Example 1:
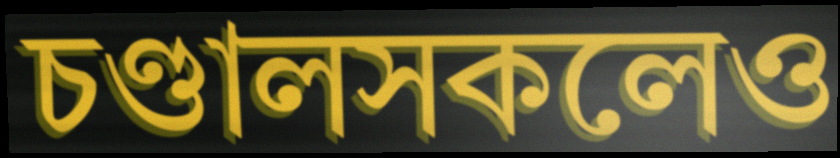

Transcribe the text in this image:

চণ্ডালসকলেও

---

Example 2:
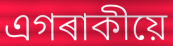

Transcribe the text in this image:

এগৰাকীয়ে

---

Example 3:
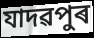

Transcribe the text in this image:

যাদৱপুৰ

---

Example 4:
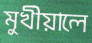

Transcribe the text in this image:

মুখীয়ালে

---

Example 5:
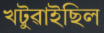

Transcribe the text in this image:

খটুৱাইছিল